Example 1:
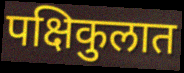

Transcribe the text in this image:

पक्षिकुलात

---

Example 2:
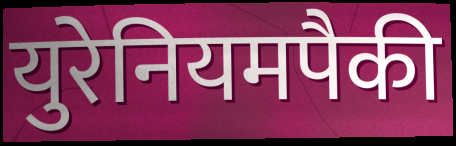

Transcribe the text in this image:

युरेनियमपैकी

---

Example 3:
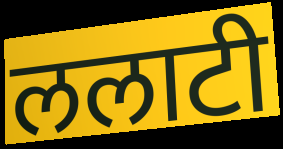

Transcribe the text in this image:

ललाटी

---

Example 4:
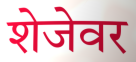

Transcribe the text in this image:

शेजेवर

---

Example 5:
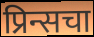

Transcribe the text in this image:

प्रिन्सचा